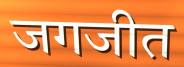
जगजीत